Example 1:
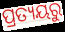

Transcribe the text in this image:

ପ୍ରତ୍ୟୟରୁ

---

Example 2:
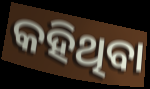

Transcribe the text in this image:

କହିଥିବା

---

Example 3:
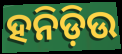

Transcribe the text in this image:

ହନିଡ଼ିଉ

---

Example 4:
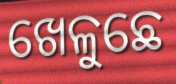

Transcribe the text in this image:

ଖେଳୁଛେ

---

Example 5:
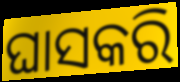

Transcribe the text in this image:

ଘାସକରି